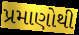
પ્રમાણોથી